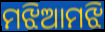
ମଝିଆମଝି